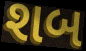
શબ